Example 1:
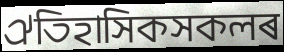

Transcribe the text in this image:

ঐতিহাসিকসকলৰ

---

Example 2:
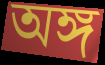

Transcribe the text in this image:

অঙ্গ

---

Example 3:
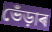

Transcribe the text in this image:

ভেঁড়াৰ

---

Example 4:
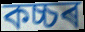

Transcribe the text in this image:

কচ্চৰ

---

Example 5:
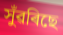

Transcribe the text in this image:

সুঁৱৰিছে